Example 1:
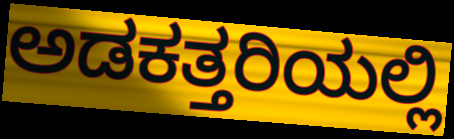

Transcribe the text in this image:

ಅಡಕತ್ತರಿಯಲ್ಲಿ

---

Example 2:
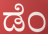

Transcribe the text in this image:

ಡೆಂ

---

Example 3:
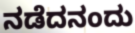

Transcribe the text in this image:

ನಡೆದನಂದು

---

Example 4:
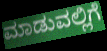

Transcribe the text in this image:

ಮಾಡುವಲ್ಲಿಗೆ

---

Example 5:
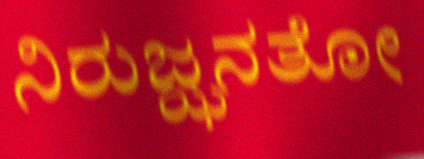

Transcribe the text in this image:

ನಿರುಜ್ಝನತೋ